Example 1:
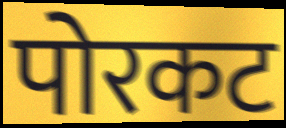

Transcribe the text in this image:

पोरकट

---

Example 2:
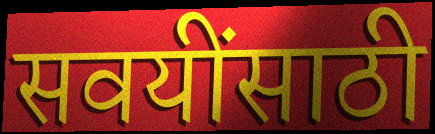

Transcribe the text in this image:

सवयींसाठी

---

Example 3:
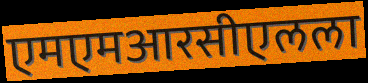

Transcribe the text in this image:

एमएमआरसीएलला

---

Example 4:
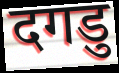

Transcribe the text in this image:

दगडु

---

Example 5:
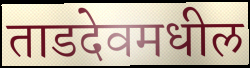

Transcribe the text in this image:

ताडदेवमधील